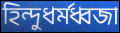
হিন্দুধর্মধ্বজা